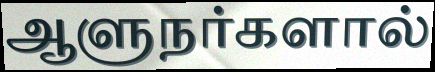
ஆளுநர்களால்